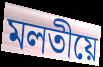
মলতীয়ে